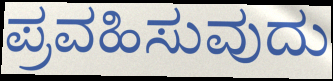
ಪ್ರವಹಿಸುವುದು